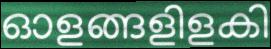
ഓളങ്ങളിളകി